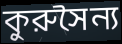
কুরুসৈন্য